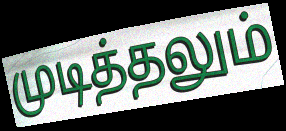
முடித்தலும்